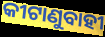
କୀଟାଣୁବାହୀ